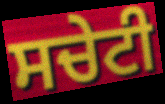
ਸਚੇਟੀ